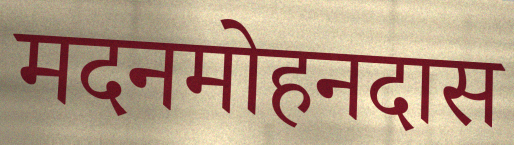
मदनमोहनदास